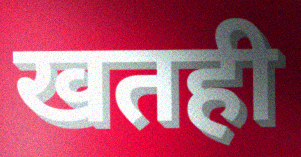
खतही